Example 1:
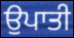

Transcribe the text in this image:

ਉਪਾਤੀ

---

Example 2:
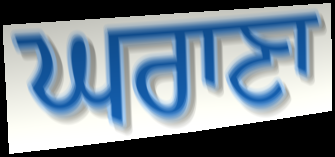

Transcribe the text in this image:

ਘਰਾਣਾ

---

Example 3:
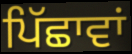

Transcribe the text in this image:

ਪਿੱਛਾਵਾਂ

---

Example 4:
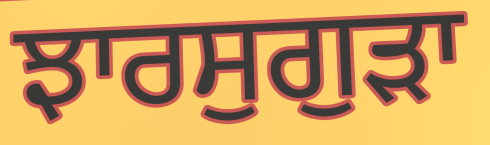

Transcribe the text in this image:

ਝਾਰਸੁਗੁੜਾ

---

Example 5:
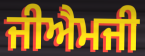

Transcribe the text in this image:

ਜੀਐਮਜੀ